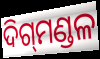
ଦିଗ୍‍ମଣ୍ଡଳ